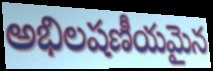
అభిలషణీయమైన